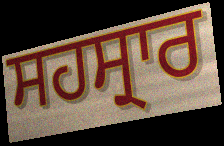
ਸਹਸ੍ਰਾਰ